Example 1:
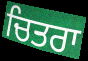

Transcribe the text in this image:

ਚਿਤਰਾ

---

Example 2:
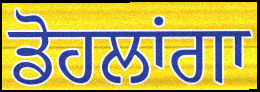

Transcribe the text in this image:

ਡੋਹਲਾਂਗਾ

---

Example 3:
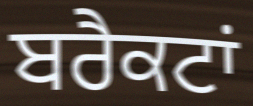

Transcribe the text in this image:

ਬਰੈਕਟਾਂ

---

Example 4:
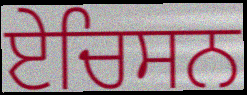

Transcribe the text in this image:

ਏਚਿਸਨ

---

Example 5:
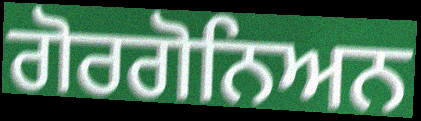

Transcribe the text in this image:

ਗੋਰਗੋਨਿਅਨ